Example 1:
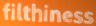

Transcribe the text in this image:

filthiness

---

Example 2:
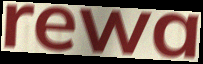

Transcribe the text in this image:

rewa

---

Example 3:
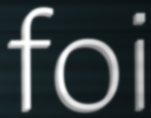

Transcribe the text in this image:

foi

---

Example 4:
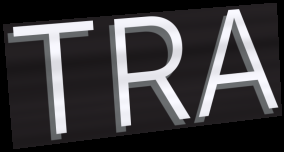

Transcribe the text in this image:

TRA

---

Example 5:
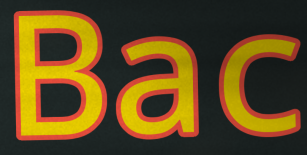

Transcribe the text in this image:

Bac